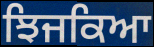
ਝਿਜਕਿਆ